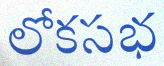
లోకసభ